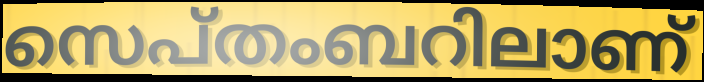
സെപ്തംബറിലാണ്